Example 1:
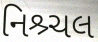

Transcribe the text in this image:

નિશ્ર્ચલ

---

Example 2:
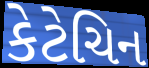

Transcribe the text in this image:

કેટેચિન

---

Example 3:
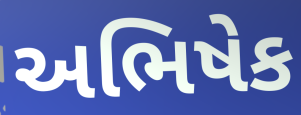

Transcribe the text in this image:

અભિષેક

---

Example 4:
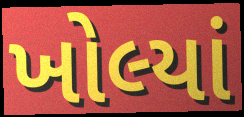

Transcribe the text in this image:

ખોલ્યાં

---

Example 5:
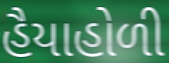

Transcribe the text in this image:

હૈયાહોળી